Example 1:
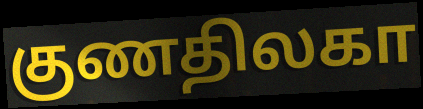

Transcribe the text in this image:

குணதிலகா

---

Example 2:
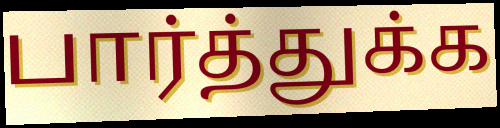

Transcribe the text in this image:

பார்த்துக்க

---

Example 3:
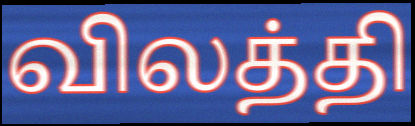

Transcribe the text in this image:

விலத்தி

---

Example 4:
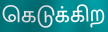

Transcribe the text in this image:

கெடுக்கிற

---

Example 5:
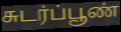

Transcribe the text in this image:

சுடர்ப்பூண்